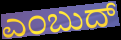
ಎಂಬುದ್